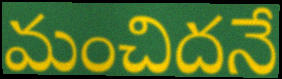
మంచిదనే